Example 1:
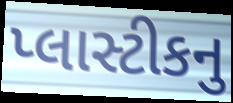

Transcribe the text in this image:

પ્લાસ્ટીકનુ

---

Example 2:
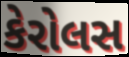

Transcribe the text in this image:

કેરોલસ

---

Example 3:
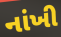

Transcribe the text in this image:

નાંખી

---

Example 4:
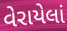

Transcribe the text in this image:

વેરાયેલાં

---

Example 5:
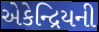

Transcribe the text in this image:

એકેન્દ્રિયની